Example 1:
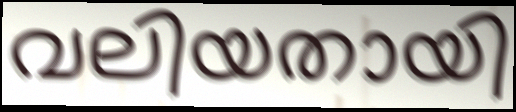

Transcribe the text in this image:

വലിയതായി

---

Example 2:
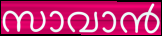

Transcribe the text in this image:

സാവാൻ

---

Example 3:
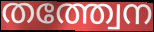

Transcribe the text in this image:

തത്ത്വേന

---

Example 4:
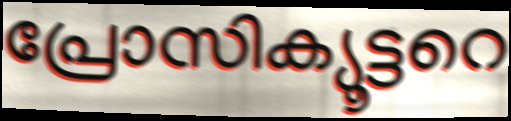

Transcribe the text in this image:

പ്രോസിക്യൂട്ടറെ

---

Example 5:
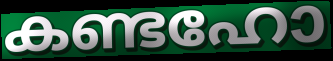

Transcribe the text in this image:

കണ്ടഹോ